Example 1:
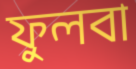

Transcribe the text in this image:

ফুলবা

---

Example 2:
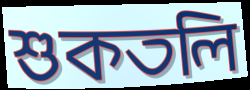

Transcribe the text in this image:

শুকতলি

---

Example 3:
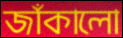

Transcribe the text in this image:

জাঁকালো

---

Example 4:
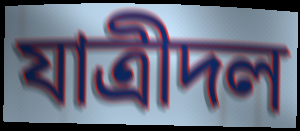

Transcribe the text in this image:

যাত্রীদল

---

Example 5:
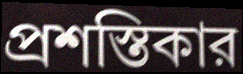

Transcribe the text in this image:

প্রশস্তিকার